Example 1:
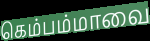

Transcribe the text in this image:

கெம்பம்மாவை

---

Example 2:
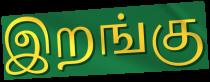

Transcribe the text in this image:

இறங்கு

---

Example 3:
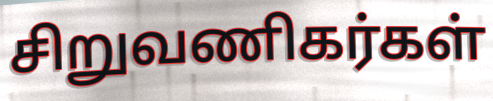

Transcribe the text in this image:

சிறுவணிகர்கள்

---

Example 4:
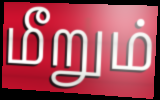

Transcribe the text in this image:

மீறும்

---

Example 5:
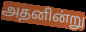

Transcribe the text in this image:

அதனின்று